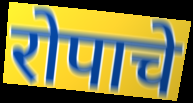
रोपाचे